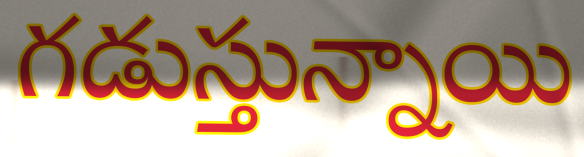
గడుస్తున్నాయి